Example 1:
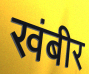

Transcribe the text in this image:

खंबीर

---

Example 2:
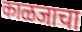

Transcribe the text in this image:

काळजाचा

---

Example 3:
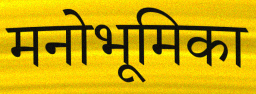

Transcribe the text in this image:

मनोभूमिका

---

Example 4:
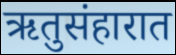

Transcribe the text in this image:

ऋतुसंहारात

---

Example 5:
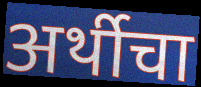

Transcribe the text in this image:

अर्थीचा